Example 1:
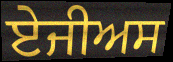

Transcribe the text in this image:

ਏਜੀਅਸ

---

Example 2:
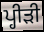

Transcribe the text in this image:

ਪ੍ਹੀੜੀ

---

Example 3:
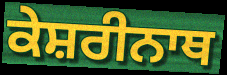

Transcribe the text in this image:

ਕੇਸ਼ਰੀਨਾਥ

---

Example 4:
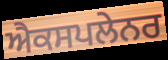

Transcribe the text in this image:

ਐਕਸਪਲੇਨਰ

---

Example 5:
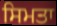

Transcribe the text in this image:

ਸਿਮਤਾ